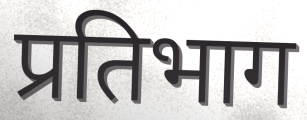
प्रतिभाग